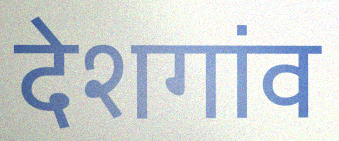
देशगांव